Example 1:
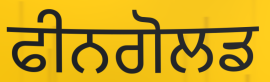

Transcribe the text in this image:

ਫੀਨਗੋਲਡ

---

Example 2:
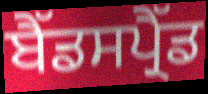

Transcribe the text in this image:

ਬੈੱਡਸਪ੍ਰੈੱਡ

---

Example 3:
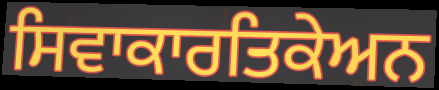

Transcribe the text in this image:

ਸਿਵਾਕਾਰਤਿਕੇਅਨ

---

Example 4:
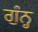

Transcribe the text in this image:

ਗੁੰਨ੍ਹ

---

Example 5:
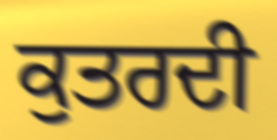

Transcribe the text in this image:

ਕੁਤਰਦੀ